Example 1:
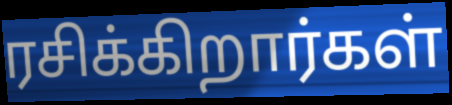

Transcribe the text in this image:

ரசிக்கிறார்கள்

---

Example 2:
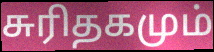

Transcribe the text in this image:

சுரிதகமும்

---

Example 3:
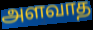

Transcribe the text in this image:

அளவாத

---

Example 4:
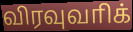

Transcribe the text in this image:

விரவுவரிக்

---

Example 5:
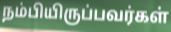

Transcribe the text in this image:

நம்பியிருப்பவர்கள்